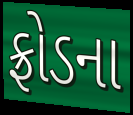
ફ્રોડના